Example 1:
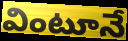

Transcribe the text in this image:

వింటూనే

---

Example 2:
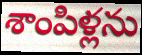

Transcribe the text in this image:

శాంపిళ్లను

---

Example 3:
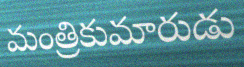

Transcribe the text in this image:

మంత్రికుమారుడు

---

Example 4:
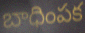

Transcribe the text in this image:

బాధింపక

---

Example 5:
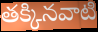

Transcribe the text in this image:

తక్కినవాటి